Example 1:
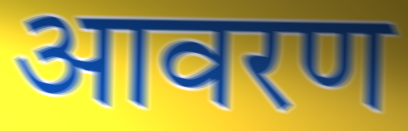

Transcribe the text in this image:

आवरण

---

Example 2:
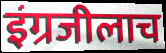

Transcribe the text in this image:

इंग्रजीलाच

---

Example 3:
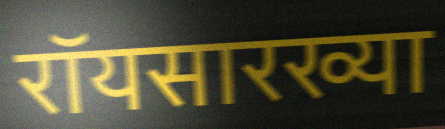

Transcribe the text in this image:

रॉयसारख्या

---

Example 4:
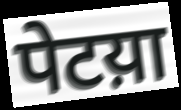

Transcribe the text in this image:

पेटय़ा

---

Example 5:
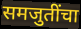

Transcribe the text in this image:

समजुतींचा